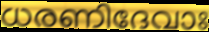
ധരണിദേവാഃ